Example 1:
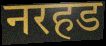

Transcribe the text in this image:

नरहड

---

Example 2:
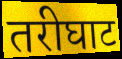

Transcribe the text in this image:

तरीघाट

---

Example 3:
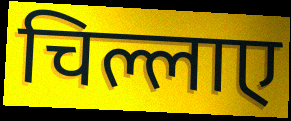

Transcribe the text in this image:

चिल्लाए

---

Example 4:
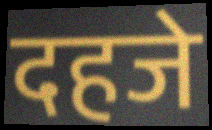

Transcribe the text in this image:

दहजे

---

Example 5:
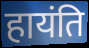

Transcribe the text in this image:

हायंति